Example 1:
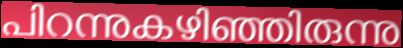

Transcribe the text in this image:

പിറന്നുകഴിഞ്ഞിരുന്നു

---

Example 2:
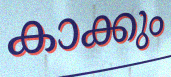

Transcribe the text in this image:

കാക്കും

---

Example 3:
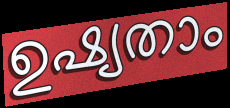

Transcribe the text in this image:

ഉഷ്യതാം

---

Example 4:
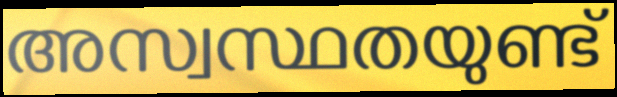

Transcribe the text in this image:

അസ്വസ്ഥതയുണ്ട്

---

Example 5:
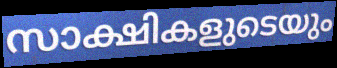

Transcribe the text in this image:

സാക്ഷികളുടെയും